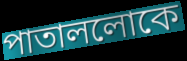
পাতাললোকে